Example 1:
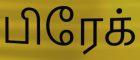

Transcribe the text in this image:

பிரேக்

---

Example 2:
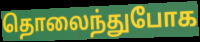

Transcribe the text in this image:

தொலைந்துபோக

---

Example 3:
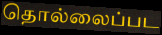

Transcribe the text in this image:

தொல்லைப்பட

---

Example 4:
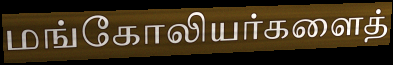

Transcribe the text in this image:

மங்கோலியர்களைத்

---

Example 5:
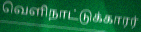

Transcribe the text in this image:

வெளிநாட்டுக்காரர்